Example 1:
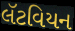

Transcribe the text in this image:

લૅટવિયન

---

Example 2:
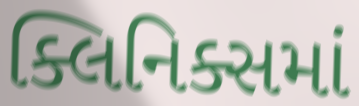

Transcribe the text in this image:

ક્લિનિક્સમાં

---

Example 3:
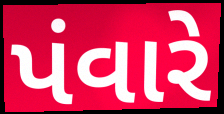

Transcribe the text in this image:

પંવારે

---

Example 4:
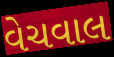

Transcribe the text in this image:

વેચવાલ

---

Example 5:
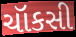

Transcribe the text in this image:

ચૉકસી